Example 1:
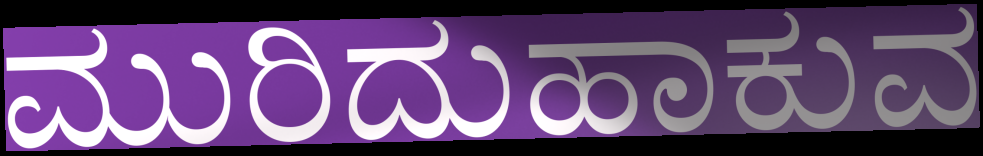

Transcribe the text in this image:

ಮುರಿದುಹಾಕುವ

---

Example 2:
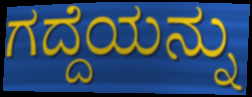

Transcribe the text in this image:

ಗದ್ದೆಯನ್ನು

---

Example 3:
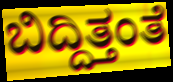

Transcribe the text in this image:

ಬಿದ್ದಿತ್ತಂತೆ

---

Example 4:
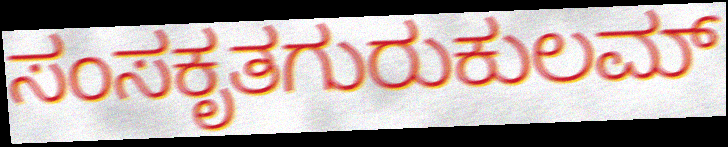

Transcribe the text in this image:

ಸಂಸಕೃತಗುರುಕುಲಮ್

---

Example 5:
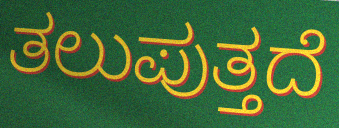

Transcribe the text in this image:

ತಲುಪುತ್ತದೆ